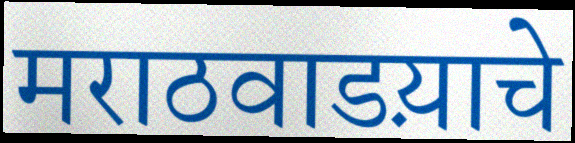
मराठवाडय़ाचे